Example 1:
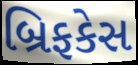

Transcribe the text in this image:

બ્રિફકેસ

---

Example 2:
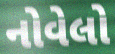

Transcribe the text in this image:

નોવેલો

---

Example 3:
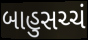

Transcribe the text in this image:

બાહુસચ્ચં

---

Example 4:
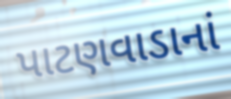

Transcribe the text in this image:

પાટણવાડાનાં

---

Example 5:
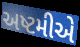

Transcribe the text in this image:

અષ્ટમીએ